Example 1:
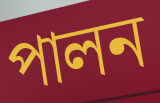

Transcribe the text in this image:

পালন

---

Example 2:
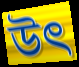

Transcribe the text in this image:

উৎ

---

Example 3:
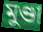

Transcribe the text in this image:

মুণ্ডা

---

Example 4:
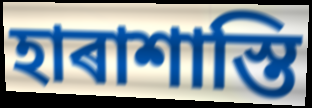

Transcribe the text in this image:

হাৰাশাস্তি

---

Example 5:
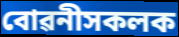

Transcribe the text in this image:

বোৱনীসকলক